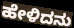
ಹೇಳಿದನು